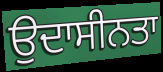
ਉਦਾਸੀਨਤਾ